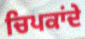
ਚਿਪਕਾਂਦੇ